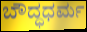
ಬೌದ್ಧಧರ್ಮ